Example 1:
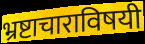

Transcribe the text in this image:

भ्रष्टाचाराविषयी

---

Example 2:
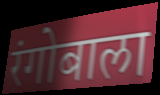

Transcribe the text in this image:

रंगोबाला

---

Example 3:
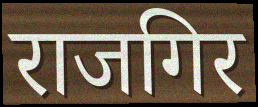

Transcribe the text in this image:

राजगिर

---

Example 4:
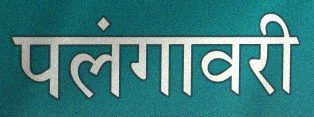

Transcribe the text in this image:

पलंगावरी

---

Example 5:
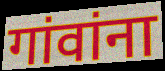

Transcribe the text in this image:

गांवांना